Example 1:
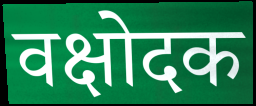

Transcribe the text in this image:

वक्षोदक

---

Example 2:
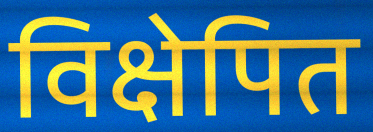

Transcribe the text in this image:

विक्षेपित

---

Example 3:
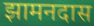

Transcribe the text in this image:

झामनदास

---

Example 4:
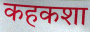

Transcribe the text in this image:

कहकशा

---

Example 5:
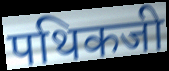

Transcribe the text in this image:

पथिकजी